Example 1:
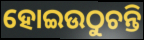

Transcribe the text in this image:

ହୋଇଉଠୁଚନ୍ତି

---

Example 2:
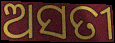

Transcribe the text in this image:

ଅସତୀ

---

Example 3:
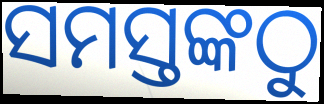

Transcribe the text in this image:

ସମସ୍ତଙ୍କଠୁ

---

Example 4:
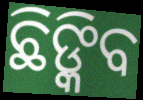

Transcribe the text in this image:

ଛିଙ୍କିବ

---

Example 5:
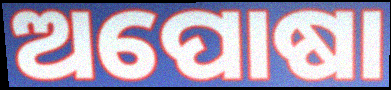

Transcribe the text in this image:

ଅପୋଷା